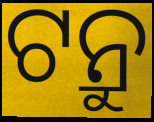
ଟନ୍ରୁ